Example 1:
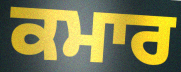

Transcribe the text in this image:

ਕਮਾਰ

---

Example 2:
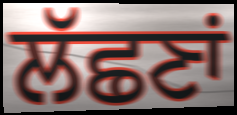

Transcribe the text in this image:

ਲੱਛਣਾਂ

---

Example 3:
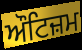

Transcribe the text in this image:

ਔਟਿਜ਼ਮ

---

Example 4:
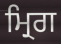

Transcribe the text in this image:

ਮ੍ਰਿਗ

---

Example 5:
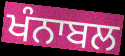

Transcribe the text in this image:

ਖੰਨਾਬਲ